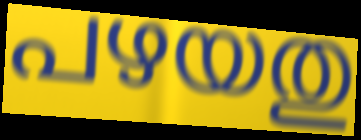
പഴയതു